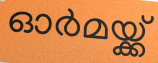
ഓർമയ്ക്ക്